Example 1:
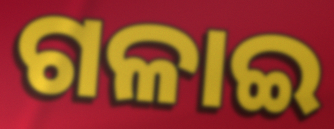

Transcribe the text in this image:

ଗଳାଇ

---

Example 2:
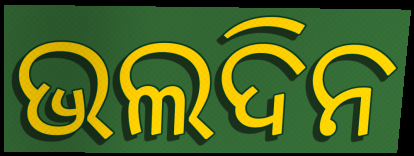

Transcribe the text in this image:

ଭଲଦିନ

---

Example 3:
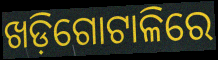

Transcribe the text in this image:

ଖଡ଼ିଗୋଟାଳିରେ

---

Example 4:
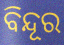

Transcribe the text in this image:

ବିନ୍ଦୂର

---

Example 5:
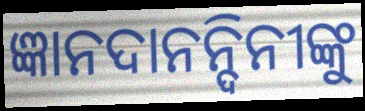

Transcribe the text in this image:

ଜ୍ଞାନଦାନନ୍ଦିନୀଙ୍କୁ